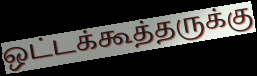
ஒட்டக்கூத்தருக்கு